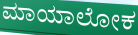
ಮಾಯಾಲೋಕ